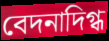
বেদনাদিগ্ধ